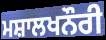
ਮਸ਼ਾਲਖਨੌਰੀ